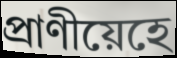
প্ৰাণীয়েহে